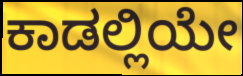
ಕಾಡಲ್ಲಿಯೇ